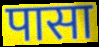
पासा